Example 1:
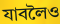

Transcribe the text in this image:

যাবলৈও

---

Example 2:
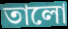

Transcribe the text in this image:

তালো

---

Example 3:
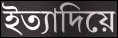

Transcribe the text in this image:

ইত্যাদিয়ে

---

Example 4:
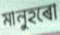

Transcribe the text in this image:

মানুহৰো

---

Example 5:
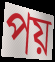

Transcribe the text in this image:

পয়